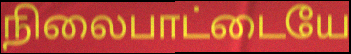
நிலைபாட்டையே